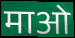
माओ